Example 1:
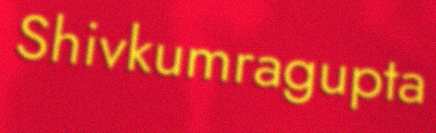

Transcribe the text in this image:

Shivkumragupta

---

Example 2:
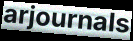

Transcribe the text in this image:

arjournals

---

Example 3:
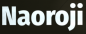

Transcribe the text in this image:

Naoroji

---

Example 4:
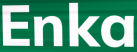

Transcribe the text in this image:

Enka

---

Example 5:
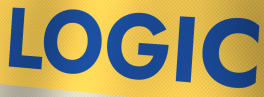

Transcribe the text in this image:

LOGIC